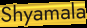
Shyamala